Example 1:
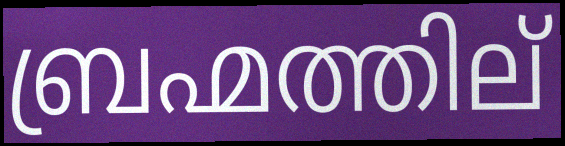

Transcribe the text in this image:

ബ്രഹ്മത്തില്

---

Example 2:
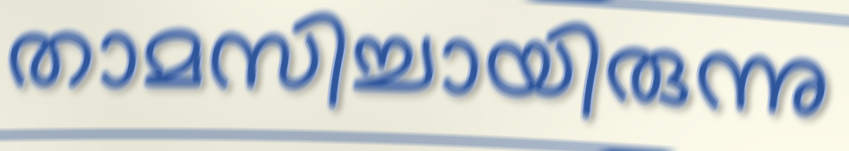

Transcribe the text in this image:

താമസിച്ചായിരുന്നു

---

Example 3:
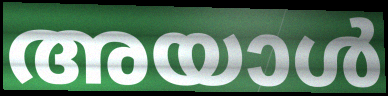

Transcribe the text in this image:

അയാൾ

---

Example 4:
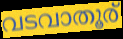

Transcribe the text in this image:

വടവാതൂര്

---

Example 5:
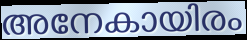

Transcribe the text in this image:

അനേകായിരം